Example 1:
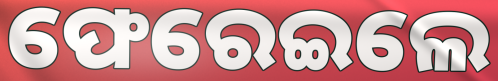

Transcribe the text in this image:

ଫେରେଇଲେ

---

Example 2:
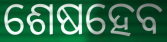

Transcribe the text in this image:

ଶେଷହେବ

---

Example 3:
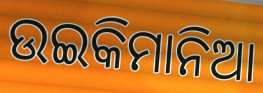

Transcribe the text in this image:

ଉଇକିମାନିଆ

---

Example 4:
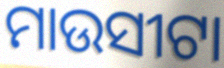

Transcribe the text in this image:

ମାଉସୀଟା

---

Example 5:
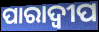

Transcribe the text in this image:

ପାରାଦ୍ୱୀପ